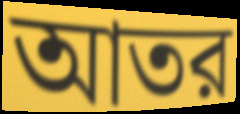
আতর